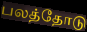
பலத்தோடு